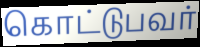
கொட்டுபவர்